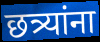
छत्र्यांना